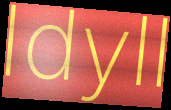
Idyll